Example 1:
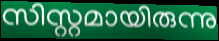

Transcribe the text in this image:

സിസ്റ്റമായിരുന്നു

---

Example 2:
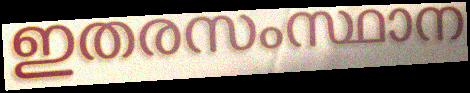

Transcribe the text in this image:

ഇതരസംസ്ഥാന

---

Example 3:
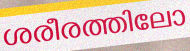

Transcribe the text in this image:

ശരീരത്തിലോ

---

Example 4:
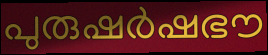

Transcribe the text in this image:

പുരുഷർഷഭൗ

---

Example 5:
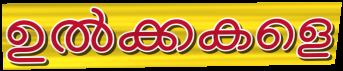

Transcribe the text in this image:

ഉൽക്കകളെ